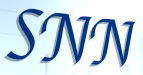
SNN